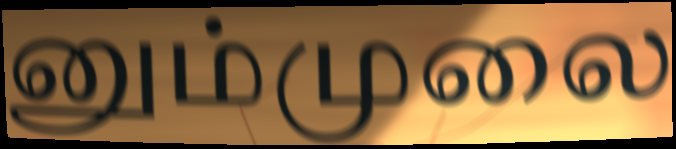
னும்முலை